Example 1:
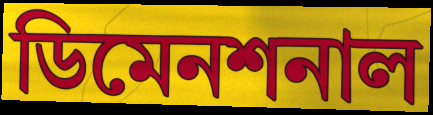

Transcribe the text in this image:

ডিমেনশনাল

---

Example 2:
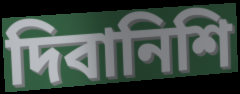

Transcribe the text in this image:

দিবানিশি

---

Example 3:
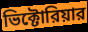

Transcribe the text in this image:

ভিক্টোরিয়ার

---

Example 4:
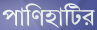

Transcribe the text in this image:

পাণিহাটির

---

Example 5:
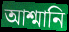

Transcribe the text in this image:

আশ্মানি